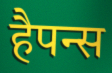
हैपन्स